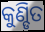
କୁଣ୍ଡିତ